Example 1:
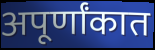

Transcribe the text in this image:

अपूर्णांकात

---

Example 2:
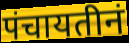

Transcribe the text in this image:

पंचायतीनं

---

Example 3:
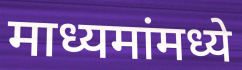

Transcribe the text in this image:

माध्यमांमध्ये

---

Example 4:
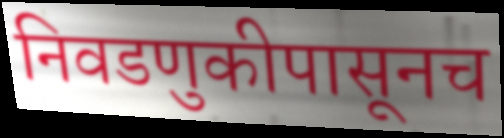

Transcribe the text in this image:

निवडणुकीपासूनच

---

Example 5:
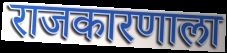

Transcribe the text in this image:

राजकारणाला